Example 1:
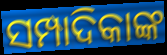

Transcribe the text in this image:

ସମ୍ପାଦିକାଙ୍କ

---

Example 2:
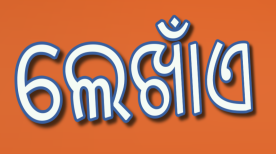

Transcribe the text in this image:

ଲେଖାଁଏ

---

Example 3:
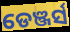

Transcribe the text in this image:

ଡେଞ୍ଜର୍ସ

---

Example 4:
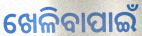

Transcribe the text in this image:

ଖେଳିବାପାଇଁ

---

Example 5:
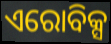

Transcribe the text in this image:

ଏରୋବିକ୍ସ